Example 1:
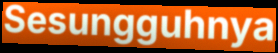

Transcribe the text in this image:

Sesungguhnya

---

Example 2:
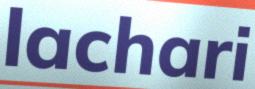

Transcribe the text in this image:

lachari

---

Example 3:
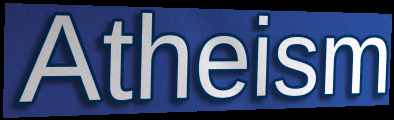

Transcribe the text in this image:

Atheism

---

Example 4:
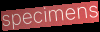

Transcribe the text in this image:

specimens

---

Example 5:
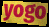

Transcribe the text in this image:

yogo